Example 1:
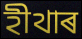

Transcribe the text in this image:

হীথাৰ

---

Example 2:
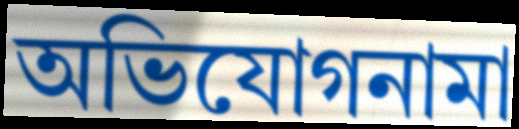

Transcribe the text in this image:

অভিযোগনামা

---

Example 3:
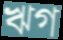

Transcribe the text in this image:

ঋগ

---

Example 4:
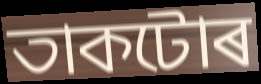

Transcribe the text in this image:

তাকটোৰ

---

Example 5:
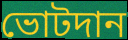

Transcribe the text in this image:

ভোটদান